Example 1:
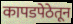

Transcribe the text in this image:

कापडपेठेतून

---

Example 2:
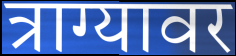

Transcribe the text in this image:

त्राग्यावर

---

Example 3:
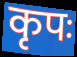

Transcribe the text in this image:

कृपः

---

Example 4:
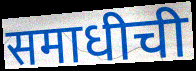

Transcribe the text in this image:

समाधीची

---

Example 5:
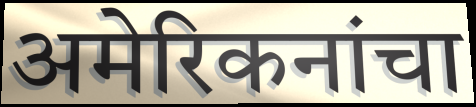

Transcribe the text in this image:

अमेरिकनांचा